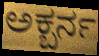
ಅಕ್ಬರ್ನ